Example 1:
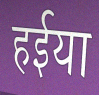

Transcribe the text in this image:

हईया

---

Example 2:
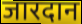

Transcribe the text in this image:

जारदान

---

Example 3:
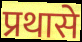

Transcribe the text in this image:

प्रथासे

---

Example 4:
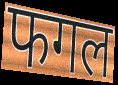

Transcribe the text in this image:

फगल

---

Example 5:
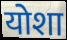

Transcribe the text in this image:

योशा